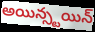
అయిన్స్టయిన్